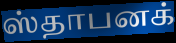
ஸ்தாபனக்